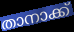
താനാക്ക്